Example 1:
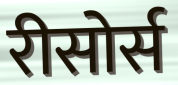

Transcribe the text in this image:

रीसोर्स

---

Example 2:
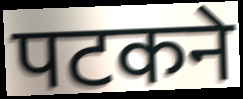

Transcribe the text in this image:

पटकने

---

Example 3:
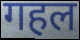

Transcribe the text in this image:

गहल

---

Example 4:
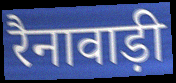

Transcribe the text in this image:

रैनावाड़ी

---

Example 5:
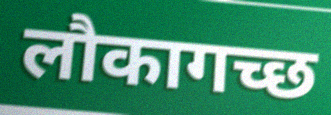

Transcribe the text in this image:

लौकागच्छ